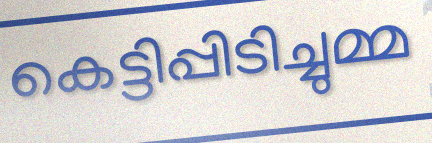
കെട്ടിപ്പിടിച്ചുമ്മ